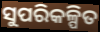
ସୁପରିକଳ୍ପିତ